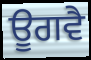
ਊਗਵੈ